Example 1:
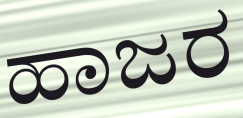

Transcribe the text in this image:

ಹಾಜರ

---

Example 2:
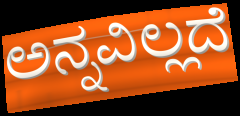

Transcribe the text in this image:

ಅನ್ನವಿಲ್ಲದೆ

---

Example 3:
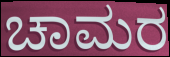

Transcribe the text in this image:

ಚಾಮರ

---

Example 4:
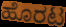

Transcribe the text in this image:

ಹೊರಟ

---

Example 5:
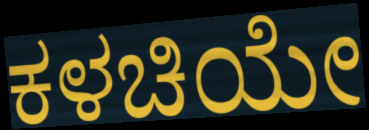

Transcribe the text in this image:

ಕಳಚಿಯೇ